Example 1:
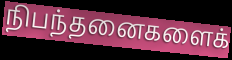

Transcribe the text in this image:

நிபந்தனைகளைக்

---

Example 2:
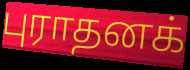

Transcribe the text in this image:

புராதனக்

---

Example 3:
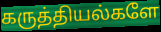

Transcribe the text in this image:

கருத்தியல்களே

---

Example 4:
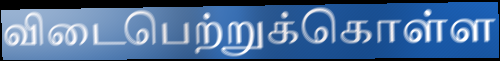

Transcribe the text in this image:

விடைபெற்றுக்கொள்ள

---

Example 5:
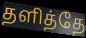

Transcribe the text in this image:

தளித்தே